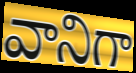
వానిగా